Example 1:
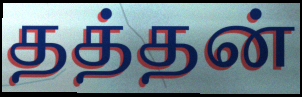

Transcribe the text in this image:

தத்தன்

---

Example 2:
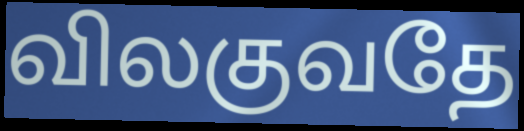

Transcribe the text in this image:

விலகுவதே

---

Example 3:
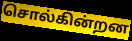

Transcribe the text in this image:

சொல்கின்றன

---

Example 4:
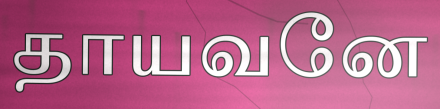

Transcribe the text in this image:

தாயவனே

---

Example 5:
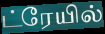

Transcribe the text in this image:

ட்ரேயில்